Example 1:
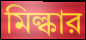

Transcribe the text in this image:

মিল্কার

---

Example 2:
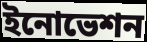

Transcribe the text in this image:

ইনোভেশন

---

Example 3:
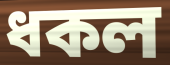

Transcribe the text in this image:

ধকল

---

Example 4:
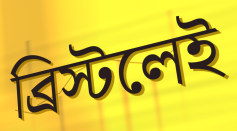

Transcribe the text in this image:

ব্রিস্টলেই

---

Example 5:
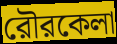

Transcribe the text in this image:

রৌরকেলা